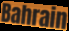
Bahrain